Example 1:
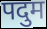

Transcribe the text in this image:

पदुम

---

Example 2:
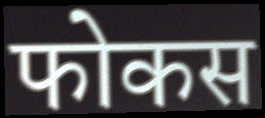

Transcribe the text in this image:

फोकस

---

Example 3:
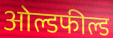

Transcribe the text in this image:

ओल्डफील्ड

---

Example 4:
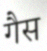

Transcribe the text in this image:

गैस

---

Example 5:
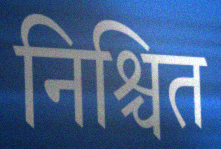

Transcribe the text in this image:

निश्चित